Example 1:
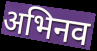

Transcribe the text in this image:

अभिनव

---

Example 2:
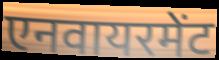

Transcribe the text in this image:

एनवायरमेंट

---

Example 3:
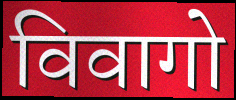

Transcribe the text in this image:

विवागो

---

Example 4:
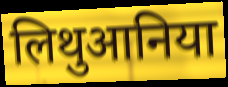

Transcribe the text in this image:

लिथुआनिया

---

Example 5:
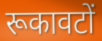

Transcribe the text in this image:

रूकावटों